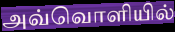
அவ்வொளியில்